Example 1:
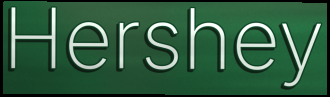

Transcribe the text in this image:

Hershey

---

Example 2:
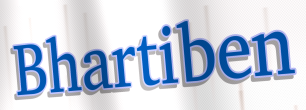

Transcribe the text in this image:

Bhartiben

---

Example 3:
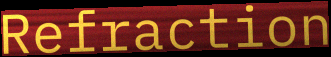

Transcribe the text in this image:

Refraction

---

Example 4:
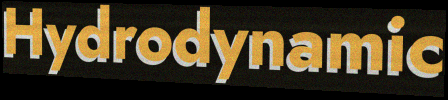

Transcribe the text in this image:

Hydrodynamic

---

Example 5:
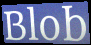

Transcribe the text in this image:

Blob